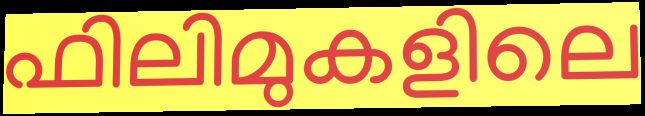
ഫിലിമുകളിലെ